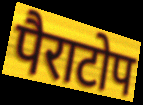
पैराटोप